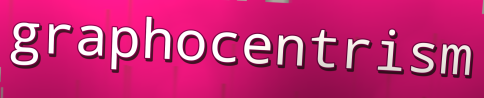
graphocentrism